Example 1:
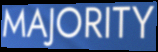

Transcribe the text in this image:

MAJORITY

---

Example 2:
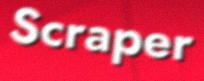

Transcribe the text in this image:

Scraper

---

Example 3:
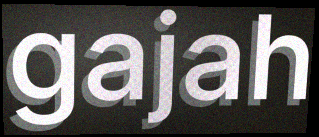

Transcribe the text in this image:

gajah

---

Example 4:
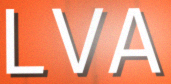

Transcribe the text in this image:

LVA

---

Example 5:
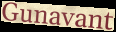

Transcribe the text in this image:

Gunavant